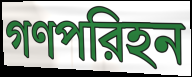
গণপরিহন